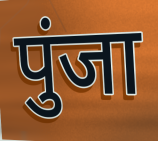
पुंजा